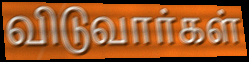
விடுவார்கள்